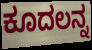
ಕೂದಲನ್ನ